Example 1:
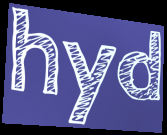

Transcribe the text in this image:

hyd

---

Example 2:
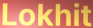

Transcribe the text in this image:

Lokhit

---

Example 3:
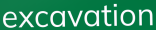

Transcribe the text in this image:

excavation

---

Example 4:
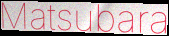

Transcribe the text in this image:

Matsubara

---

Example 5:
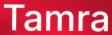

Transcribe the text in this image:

Tamra